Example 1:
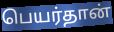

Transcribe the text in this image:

பெயர்தான்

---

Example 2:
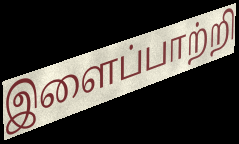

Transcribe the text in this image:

இளைப்பாற்றி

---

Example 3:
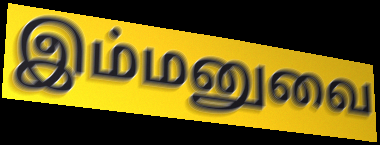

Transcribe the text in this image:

இம்மனுவை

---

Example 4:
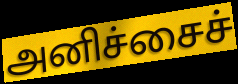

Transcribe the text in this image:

அனிச்சைச்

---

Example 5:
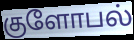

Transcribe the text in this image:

குளோபல்